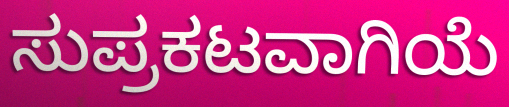
ಸುಪ್ರಕಟವಾಗಿಯೆ